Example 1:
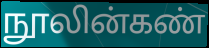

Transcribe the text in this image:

நூலின்கண்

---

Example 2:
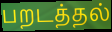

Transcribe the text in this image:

பறடத்தல்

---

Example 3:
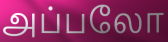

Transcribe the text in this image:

அப்பலோ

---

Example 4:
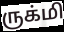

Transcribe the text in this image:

ருக்மி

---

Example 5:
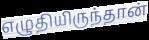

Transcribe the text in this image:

எழுதியிருந்தான்